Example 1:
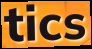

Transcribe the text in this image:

tics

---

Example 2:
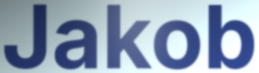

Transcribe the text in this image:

Jakob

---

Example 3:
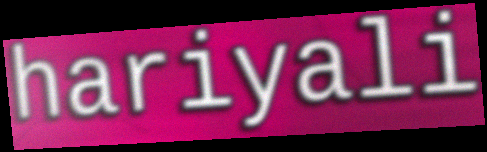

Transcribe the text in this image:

hariyali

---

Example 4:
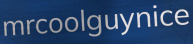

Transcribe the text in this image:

mrcoolguynice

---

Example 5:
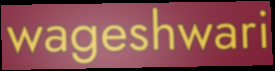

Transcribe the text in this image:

wageshwari